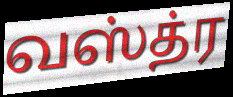
வஸ்த்ர